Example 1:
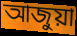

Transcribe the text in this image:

আজুয়া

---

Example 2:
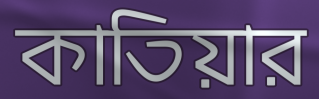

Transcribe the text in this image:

কাতিয়ার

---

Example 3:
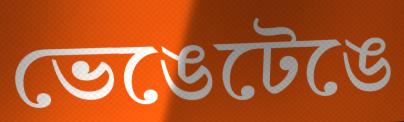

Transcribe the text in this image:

ভেঙেটেঙে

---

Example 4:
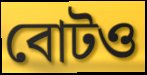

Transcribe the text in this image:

বোটও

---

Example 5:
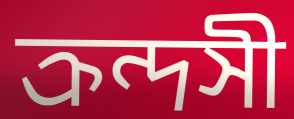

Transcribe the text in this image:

ক্রন্দসী